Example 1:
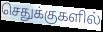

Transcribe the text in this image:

செதுக்குகளில்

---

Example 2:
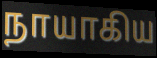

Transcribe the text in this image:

நாயாகிய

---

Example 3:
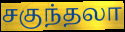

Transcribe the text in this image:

சகுந்தலா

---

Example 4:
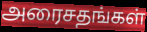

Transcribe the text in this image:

அரைசதங்கள்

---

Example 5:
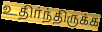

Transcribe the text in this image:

உதிர்ந்திருக்க